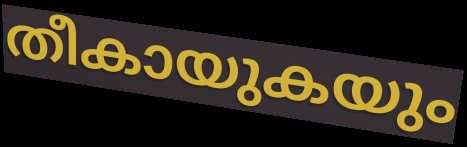
തീകായുകയും